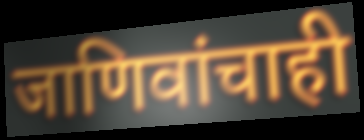
जाणिवांचाही